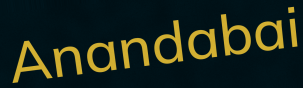
Anandabai